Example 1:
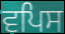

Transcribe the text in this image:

ਵਪਿਸ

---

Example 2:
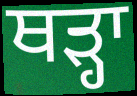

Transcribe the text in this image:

ਥੜ੍ਹਾ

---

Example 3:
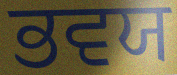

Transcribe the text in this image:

ਭਵਯ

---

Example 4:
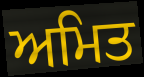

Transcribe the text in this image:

ਅਮਿਤ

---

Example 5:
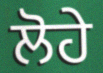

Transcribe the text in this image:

ਲੋਹੇ